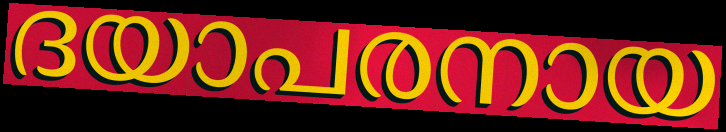
ദയാപരനായ